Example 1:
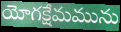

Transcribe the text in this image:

యోగక్షేమమును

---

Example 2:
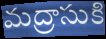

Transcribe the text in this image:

మద్రాసుకి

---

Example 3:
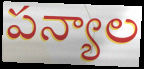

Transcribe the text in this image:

పన్యాల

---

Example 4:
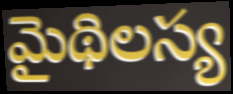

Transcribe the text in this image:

మైథిలస్య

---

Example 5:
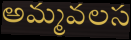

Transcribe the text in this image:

అమ్మవలస